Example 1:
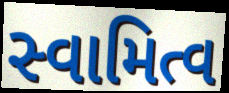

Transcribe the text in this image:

સ્વામિત્વ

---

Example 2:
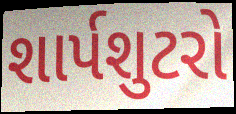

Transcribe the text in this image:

શાર્પશુટરો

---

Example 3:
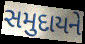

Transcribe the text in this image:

સમુદાયને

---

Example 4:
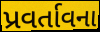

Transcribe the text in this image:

પ્રવર્તાવના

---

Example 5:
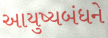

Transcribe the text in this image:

આયુષ્યબંધને